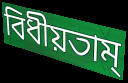
বিধীয়তাম্